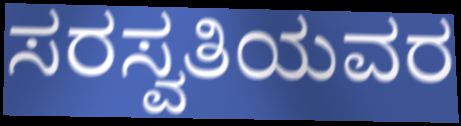
ಸರಸ್ವತಿಯವರ